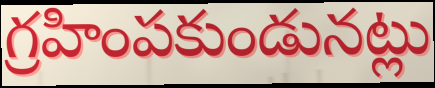
గ్రహింపకుండునట్లు